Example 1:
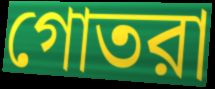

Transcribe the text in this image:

গোতরা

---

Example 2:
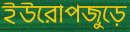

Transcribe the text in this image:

ইউরোপজুড়ে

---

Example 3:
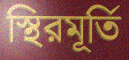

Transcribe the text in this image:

স্থিরমূর্তি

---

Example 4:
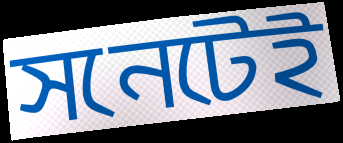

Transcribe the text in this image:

সনেটেই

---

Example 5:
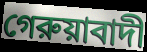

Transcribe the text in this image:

গেরুয়াবাদী